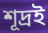
শূদ্ৰই